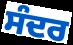
ਸੰਦਰ